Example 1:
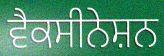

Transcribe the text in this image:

ਵੈਕਸੀਨੇਸ਼ਨ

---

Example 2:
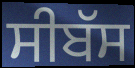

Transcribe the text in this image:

ਸੀਬੱਸ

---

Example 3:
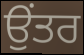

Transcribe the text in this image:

ਉਂਤਰ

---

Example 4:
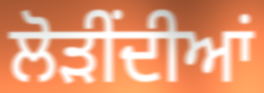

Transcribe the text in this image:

ਲੋੜੀਂਦੀਆਂ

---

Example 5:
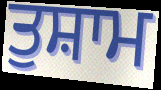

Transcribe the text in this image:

ਤੁਸ਼ਾਮ